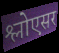
श्लोएसर